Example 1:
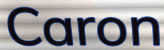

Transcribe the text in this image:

Caron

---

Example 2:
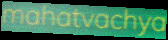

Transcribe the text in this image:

mahatvachya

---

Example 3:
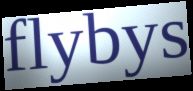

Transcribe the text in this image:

flybys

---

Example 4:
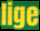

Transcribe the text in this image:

lige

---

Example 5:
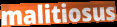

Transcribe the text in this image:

malitiosus